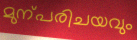
മുന്പരിചയവും